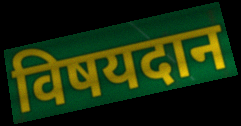
विषयदान